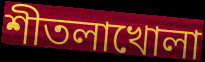
শীতলাখোলা